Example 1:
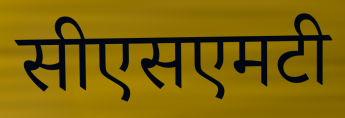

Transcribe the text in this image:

सीएसएमटी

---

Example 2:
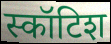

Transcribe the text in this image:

स्कॉटिश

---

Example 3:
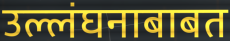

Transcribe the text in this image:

उल्लंघनाबाबत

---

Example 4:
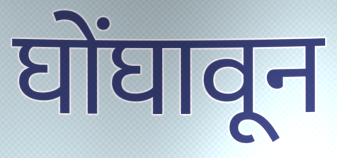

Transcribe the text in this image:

घोंघावून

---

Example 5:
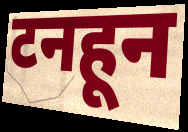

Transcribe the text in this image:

टनहून